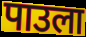
पाउला